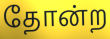
தோன்ற